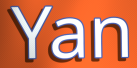
Yan